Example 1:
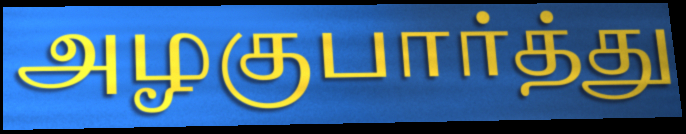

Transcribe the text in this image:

அழகுபார்த்து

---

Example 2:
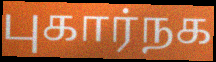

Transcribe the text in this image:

புகார்நக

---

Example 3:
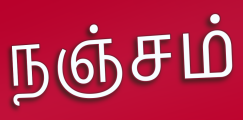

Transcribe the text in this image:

நஞ்சம்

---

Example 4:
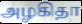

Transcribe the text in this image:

அழகிதா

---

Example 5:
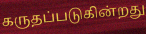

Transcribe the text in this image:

கருதப்படுகின்றது